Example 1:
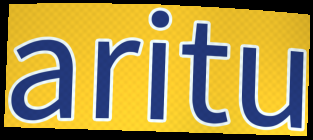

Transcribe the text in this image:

aritu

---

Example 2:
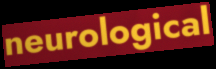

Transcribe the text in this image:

neurological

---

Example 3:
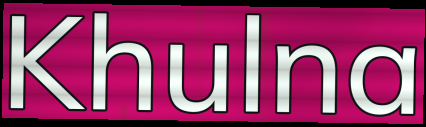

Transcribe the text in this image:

Khulna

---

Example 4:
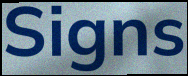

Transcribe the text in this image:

Signs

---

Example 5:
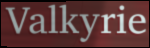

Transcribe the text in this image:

Valkyrie